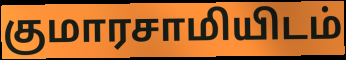
குமாரசாமியிடம்